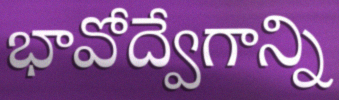
భావోద్వేగాన్ని